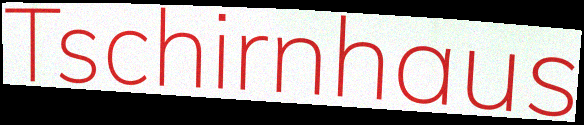
Tschirnhaus